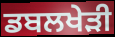
ਡਬਲਖੇੜੀ